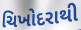
ચિખોદરાથી